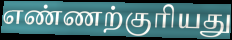
எண்ணற்குரியது